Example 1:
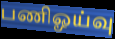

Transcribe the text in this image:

பணிஓய்வு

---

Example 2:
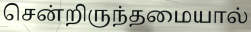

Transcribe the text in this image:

சென்றிருந்தமையால்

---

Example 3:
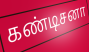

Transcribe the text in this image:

கண்டிசனா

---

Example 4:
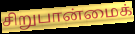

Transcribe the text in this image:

சிறுபான்மைக்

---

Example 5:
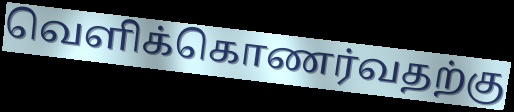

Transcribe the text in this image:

வெளிக்கொணர்வதற்கு